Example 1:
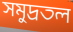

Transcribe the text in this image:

সমুদ্রতল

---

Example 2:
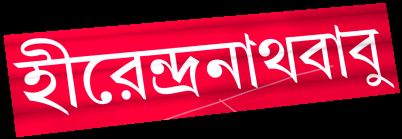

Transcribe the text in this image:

হীরেন্দ্রনাথবাবু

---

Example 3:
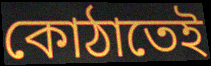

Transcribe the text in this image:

কোঠাতেই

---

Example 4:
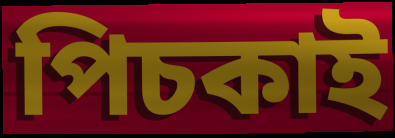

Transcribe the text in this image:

পিচকাই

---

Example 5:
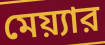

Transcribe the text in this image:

মেয়্যার